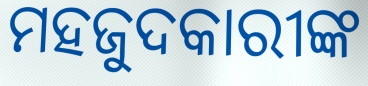
ମହଜୁଦକାରୀଙ୍କ